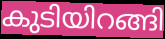
കുടിയിറങ്ങി